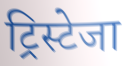
ट्रिस्टेजा